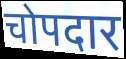
चोपदार